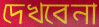
দেখবেনা